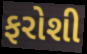
ફરોશી